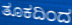
ತೂಕದಿಂದ